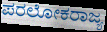
ಪರಲೋಕರಾಜ್ಯ